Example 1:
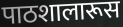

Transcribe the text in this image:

पाठशालारूस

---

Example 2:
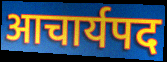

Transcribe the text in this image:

आचार्यपद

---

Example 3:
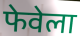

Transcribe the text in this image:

फेवेला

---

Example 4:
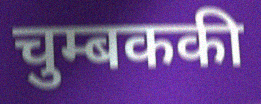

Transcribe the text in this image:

चुम्बककी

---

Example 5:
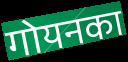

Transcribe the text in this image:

गोयनका